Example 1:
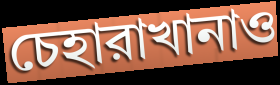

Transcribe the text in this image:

চেহারাখানাও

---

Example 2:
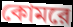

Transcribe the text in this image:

কোমরে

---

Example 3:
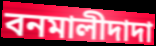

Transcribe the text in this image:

বনমালীদাদা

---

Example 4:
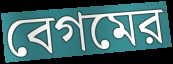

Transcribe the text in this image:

বেগমের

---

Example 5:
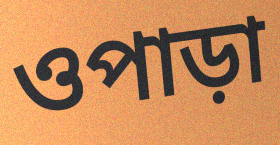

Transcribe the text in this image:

ওপাড়া